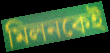
মিলনকেই